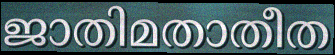
ജാതിമതാതീത